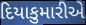
દિયાકુમારીએ